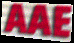
AAE